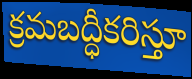
క్రమబద్ధీకరిస్తూ